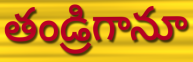
తండ్రిగానూ